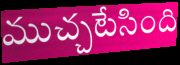
ముచ్చటేసింది